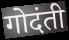
गोदंती